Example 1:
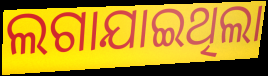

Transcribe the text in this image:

ଲଗାଯାଇଥିଲା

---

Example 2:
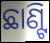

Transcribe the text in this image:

ଛାଣ୍ଟି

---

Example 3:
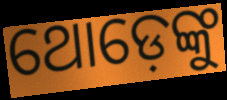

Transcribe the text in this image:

ଥୋଡ଼େଙ୍କୁ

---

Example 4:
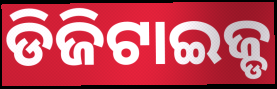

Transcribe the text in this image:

ଡିଜିଟାଇଜ୍ଡ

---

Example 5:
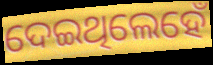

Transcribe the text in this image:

ଦେଇଥିଲେହେଁ